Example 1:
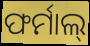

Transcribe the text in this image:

ଫର୍ମାଲ୍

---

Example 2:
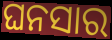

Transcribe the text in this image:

ଘନସାର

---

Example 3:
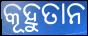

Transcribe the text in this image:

କୂହୁତାନ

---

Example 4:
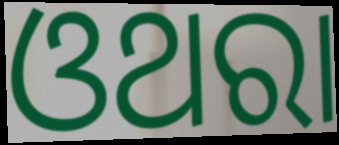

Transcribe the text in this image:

ଓଥରା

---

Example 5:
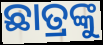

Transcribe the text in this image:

ଛାତ୍ରଙ୍କୁ